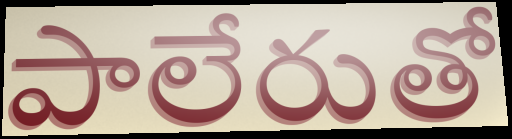
పాలేరుతో